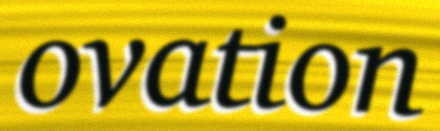
ovation